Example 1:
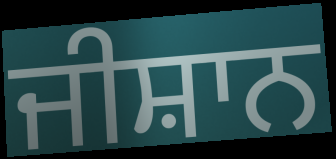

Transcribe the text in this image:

ਜੀਸ਼ਾਨ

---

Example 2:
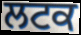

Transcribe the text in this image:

ਲਟਕ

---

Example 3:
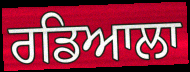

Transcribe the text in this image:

ਰਡਿਆਲਾ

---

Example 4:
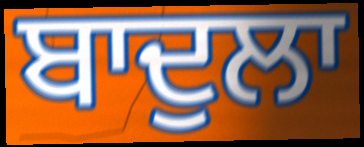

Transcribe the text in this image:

ਬਾਦੁਲਾ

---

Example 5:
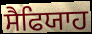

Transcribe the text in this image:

ਸੈਫਿਯਾਹ